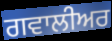
ਗਵਾਲੀਅਰ